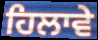
ਹਿਲਾਵੇ